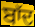
ਬਾੱਦ